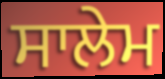
ਸਾਲੇਮ